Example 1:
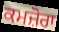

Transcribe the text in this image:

ਕਮਜ਼ੋਰਾ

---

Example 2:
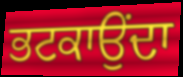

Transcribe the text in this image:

ਭਟਕਾਉਂਦਾ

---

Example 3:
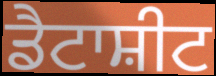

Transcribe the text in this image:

ਡੈਟਾਸ਼ੀਟ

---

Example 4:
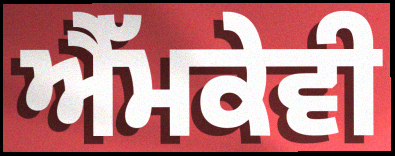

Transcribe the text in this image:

ਐੱਮਕੇਵੀ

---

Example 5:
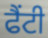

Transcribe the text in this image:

ਫੈਂਟੀ